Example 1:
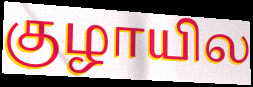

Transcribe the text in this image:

குழாயில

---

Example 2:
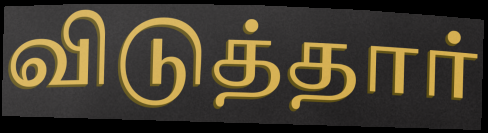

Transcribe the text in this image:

விடுத்தார்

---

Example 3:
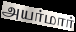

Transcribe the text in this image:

அயர்மார்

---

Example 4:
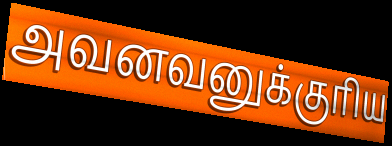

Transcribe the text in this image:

அவனவனுக்குரிய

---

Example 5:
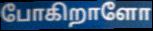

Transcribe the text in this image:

போகிறாளோ